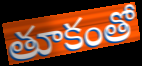
తూకంతో